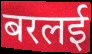
बरलई